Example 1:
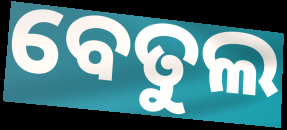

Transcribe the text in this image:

ବେତୁଲ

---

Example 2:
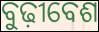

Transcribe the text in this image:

ବୁଢ଼ୀବେଶ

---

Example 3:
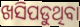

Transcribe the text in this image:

ଖସିପଡୁଥିବା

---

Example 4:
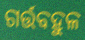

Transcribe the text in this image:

ଗର୍ତ୍ତବହୁଳ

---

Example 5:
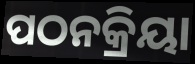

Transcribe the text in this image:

ପଠନକ୍ରିୟା